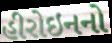
હીરોઇનનો